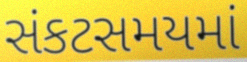
સંકટસમયમાં